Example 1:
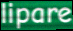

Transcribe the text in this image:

lipare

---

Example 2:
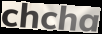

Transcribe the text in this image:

chcha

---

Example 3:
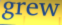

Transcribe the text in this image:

grew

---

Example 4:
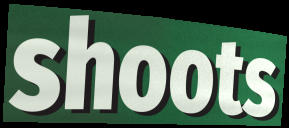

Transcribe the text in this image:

shoots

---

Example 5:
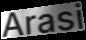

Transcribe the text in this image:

Arasi